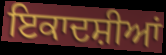
ਇਕਾਦਸ਼ੀਆਂ